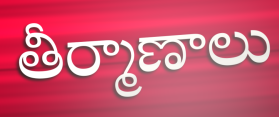
తీర్మాణాలు